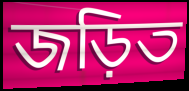
জড়িত